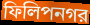
ফিলিপনগর